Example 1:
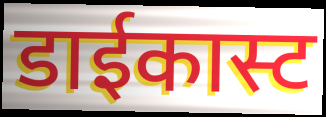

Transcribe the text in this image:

डाईकास्ट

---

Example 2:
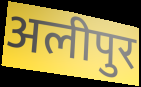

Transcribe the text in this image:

अलीपुर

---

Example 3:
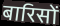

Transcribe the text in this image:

बारिसों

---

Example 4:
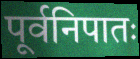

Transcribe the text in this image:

पूर्वनिपातः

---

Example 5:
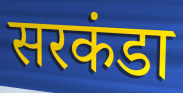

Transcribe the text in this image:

सरकंडा